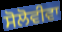
ਸੋਲੋਵੀਵਾ